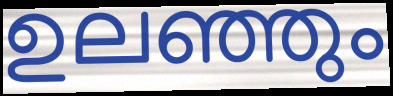
ഉലഞ്ഞും